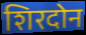
शिरदोन